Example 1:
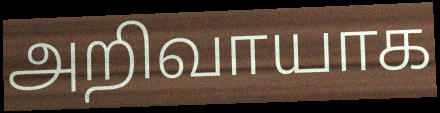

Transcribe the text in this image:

அறிவாயாக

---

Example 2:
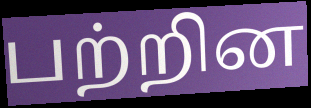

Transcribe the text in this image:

பற்றின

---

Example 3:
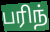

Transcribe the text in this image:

பரிந்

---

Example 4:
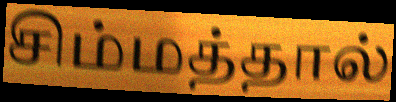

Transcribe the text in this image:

சிம்மத்தால்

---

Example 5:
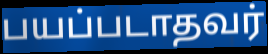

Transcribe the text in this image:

பயப்படாதவர்